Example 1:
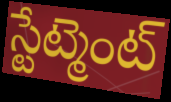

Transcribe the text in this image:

స్టేట్మెంట్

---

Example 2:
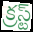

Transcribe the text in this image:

క్రస్ట్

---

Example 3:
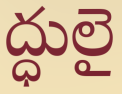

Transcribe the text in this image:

ద్ధులై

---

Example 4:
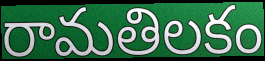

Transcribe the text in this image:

రామతిలకం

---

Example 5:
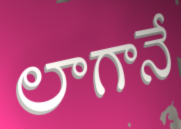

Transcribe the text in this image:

లాగానే